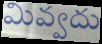
మివ్వదు